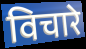
विचारे